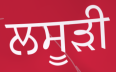
ਲਸੂੜੀ